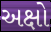
અક્ષો